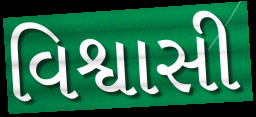
વિશ્વાસી